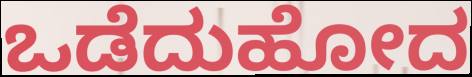
ಒಡೆದುಹೋದ